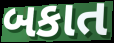
બકાત